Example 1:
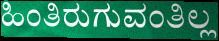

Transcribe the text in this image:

ಹಿಂತಿರುಗುವಂತಿಲ್ಲ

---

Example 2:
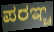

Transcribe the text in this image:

ಪರಞ್ಚ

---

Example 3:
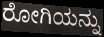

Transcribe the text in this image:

ರೋಗಿಯನ್ನು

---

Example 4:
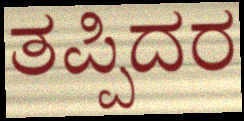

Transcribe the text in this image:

ತಪ್ಪಿದರ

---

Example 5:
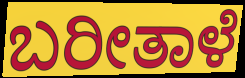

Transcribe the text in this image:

ಬರೀತಾಳೆ